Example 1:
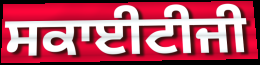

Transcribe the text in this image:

ਸਕਾਈਟੀਜੀ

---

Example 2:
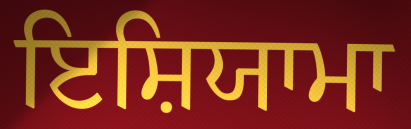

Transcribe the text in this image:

ਇਸ਼ਿਯਾਮਾ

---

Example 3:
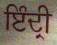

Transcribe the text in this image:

ਇੰਦ੍ਰੀ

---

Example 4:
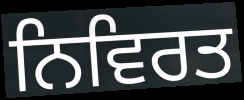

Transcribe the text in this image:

ਨਿਵਿਰਤ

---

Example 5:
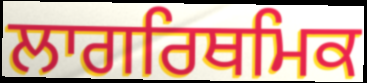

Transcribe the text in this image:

ਲਾਗਰਿਥਮਿਕ